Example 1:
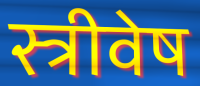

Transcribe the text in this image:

स्त्रीवेष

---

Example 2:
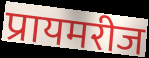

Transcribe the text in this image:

प्रायमरीज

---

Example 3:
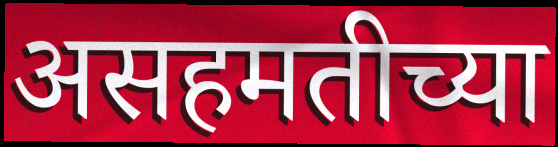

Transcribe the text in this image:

असहमतीच्या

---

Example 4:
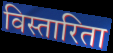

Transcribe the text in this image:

विस्तारिता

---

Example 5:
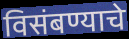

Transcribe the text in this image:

विसंबण्याचे